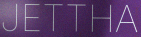
JETTHA